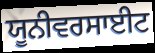
ਯੂਨੀਵਰਸਾਈਟ